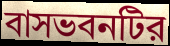
বাসভবনটির